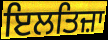
ਇਲਤਿਜ਼ਾ